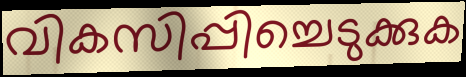
വികസിപ്പിച്ചെടുക്കുക